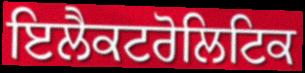
ਇਲੈਕਟਰੋਲਿਟਿਕ